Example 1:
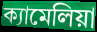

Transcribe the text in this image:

ক্যামেলিয়া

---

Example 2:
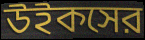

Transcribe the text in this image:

উইকসের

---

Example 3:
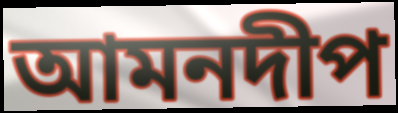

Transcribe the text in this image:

আমনদীপ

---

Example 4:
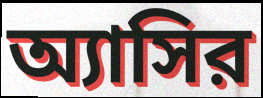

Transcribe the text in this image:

অ্যাসির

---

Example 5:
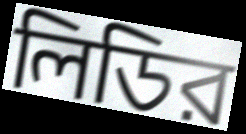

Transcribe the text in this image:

লিডির